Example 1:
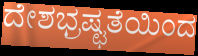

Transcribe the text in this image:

ದೇಶಭ್ರಷ್ಟತೆಯಿಂದ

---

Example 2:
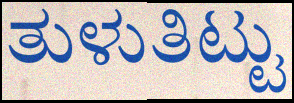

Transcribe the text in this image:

ತುಳುತಿಟ್ಟು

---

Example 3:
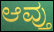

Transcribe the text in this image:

ಆವ್ತು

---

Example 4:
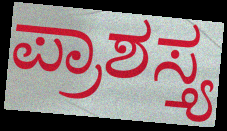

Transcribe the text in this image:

ಪ್ರಾಶಸ್ತ್ಯ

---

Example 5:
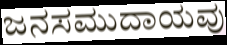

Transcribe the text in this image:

ಜನಸಮುದಾಯವು